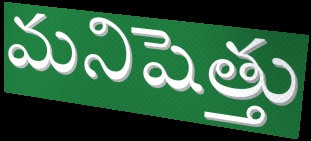
మనిషెత్తు